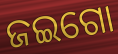
ଜଇଗୋ